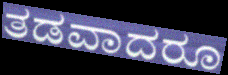
ತಡವಾದರೂ